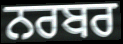
ਨਰਬਰ